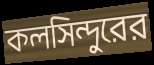
কলসিন্দুরের